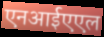
एनआईएएल